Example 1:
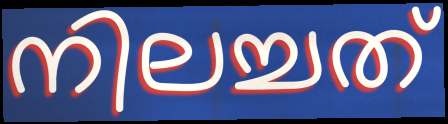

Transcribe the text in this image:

നിലച്ചത്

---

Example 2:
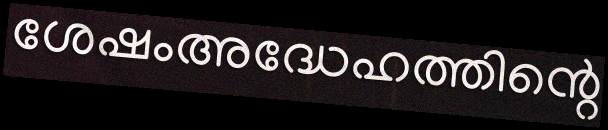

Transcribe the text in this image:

ശേഷംഅദ്ധേഹത്തിന്റെ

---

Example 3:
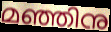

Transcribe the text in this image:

മഞ്ഞിനു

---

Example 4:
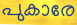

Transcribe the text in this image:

പുകാരേ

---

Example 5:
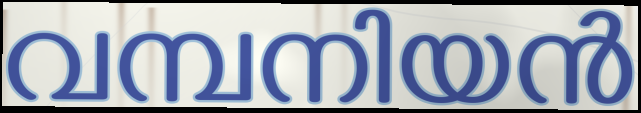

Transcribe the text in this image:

വമ്പനിയൻ